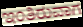
ಇಂತಿರುವಾಗ